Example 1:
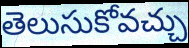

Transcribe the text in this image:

తెలుసుకోవచ్చు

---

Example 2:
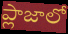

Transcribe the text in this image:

ప్లాజాలో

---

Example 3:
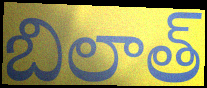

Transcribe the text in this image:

బిలాత్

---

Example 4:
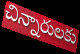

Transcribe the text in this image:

చిన్నారులకు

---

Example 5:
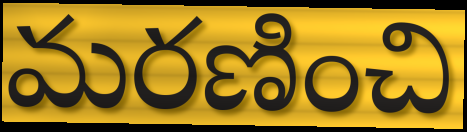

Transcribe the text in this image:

మరణించి